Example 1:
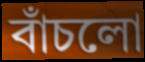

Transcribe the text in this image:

বাঁচলো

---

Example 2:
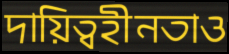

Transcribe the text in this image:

দায়িত্বহীনতাও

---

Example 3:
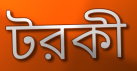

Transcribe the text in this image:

টরকী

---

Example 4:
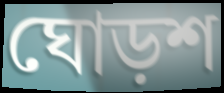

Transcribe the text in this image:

ঘোড়শ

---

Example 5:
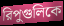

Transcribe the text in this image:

রিপুগুলিকে